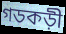
গডকড়ী